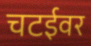
चटईवर